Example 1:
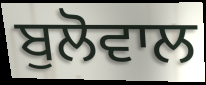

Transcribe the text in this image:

ਬੁਲੋਵਾਲ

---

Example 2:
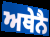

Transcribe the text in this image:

ਅਥੇਨੈ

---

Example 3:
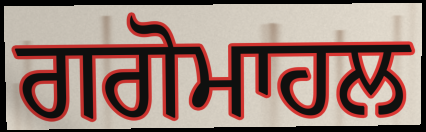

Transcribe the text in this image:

ਗਗੋਮਾਹਲ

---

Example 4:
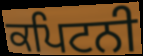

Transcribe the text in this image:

ਕਪਿਟਨੀ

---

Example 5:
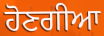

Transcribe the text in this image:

ਹੋਣਗੀਆ